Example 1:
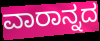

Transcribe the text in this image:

ವಾರಾನ್ನದ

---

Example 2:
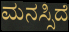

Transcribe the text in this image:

ಮನಸ್ಸಿದೆ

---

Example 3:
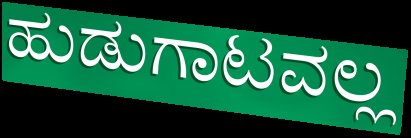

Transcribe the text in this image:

ಹುಡುಗಾಟವಲ್ಲ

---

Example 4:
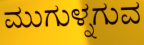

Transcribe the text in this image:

ಮುಗುಳ್ನಗುವ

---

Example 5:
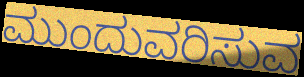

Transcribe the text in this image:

ಮುಂದುವರಿಸುವ